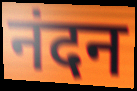
नंदन